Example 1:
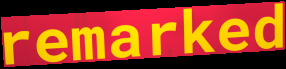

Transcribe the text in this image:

remarked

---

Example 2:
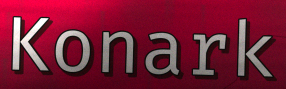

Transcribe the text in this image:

Konark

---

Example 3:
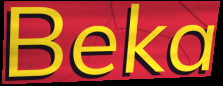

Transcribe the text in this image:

Beka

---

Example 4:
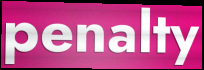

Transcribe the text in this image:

penalty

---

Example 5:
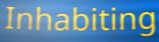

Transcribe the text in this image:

Inhabiting